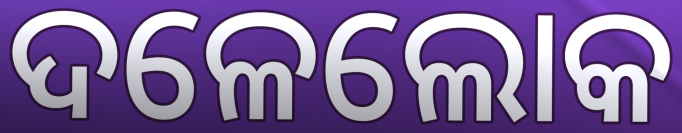
ଦଳେଲୋକ